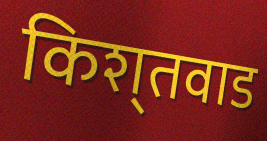
किश्तवाड